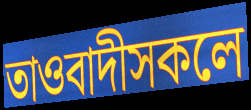
তাওবাদীসকলে